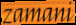
zamani